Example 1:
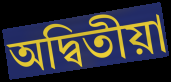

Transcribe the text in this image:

অদ্বিতীয়া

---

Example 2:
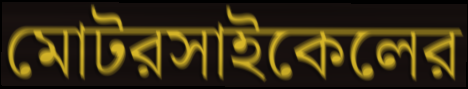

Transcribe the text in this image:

মোটরসাইকেলের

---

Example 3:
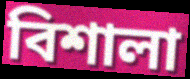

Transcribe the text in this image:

বিশালা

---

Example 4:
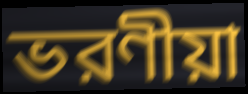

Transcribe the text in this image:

ভরণীয়া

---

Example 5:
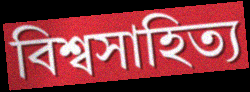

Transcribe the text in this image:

বিশ্বসাহিত্য